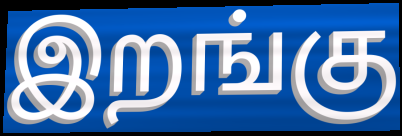
இறங்கு